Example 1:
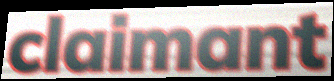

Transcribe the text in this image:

claimant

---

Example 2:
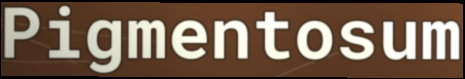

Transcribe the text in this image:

Pigmentosum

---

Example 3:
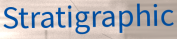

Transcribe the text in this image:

Stratigraphic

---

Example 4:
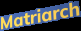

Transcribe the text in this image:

Matriarch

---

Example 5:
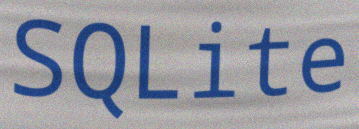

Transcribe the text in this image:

SQLite